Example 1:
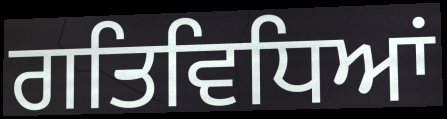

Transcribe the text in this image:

ਗਤਿਵਿਧਿਆਂ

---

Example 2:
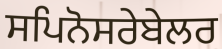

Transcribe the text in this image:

ਸਪਿਨੋਸਰੇਬੇਲਰ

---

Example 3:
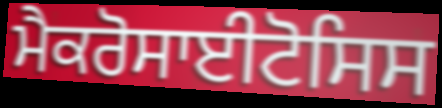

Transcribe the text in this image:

ਮੈਕਰੋਸਾਈਟੋਸਿਸ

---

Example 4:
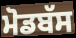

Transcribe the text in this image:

ਮੋਡਬੱਸ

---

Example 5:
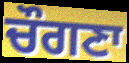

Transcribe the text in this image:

ਚੌਗਣਾ